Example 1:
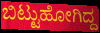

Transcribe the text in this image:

ಬಿಟ್ಟುಹೋಗಿದ್ದ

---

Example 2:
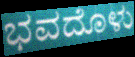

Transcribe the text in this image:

ಭವದೊಳು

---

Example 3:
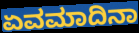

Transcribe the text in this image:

ಏವಮಾದಿನಾ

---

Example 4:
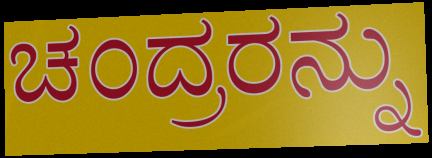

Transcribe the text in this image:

ಚಂದ್ರರನ್ನು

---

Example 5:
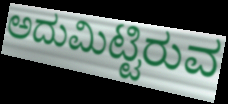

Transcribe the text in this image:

ಅದುಮಿಟ್ಟಿರುವ